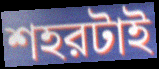
শহরটাই